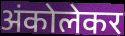
अंकोलेकर